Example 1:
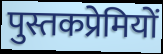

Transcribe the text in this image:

पुस्तकप्रेमियों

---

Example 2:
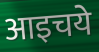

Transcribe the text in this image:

आइचये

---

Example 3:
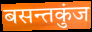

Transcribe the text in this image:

बसन्तकुंज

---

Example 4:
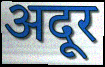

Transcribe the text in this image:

अदूर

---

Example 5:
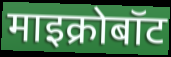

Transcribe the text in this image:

माइक्रोबॉट